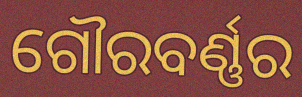
ଗୌରବର୍ଣ୍ଣର